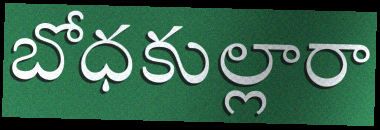
బోధకుల్లారా